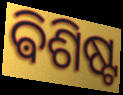
ଵିଶିଷ୍ଟ